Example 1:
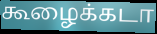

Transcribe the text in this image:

கூழைக்கடா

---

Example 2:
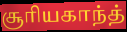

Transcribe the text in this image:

சூரியகாந்த்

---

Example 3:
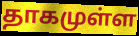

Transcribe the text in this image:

தாகமுள்ள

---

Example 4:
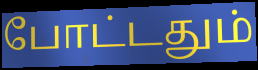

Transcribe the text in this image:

போட்டதும்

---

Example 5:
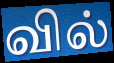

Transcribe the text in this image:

வில்